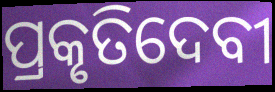
ପ୍ରକୃତିଦେବୀ